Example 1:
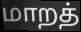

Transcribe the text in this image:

மாறத்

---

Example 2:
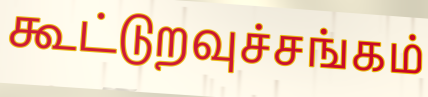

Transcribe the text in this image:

கூட்டுறவுச்சங்கம்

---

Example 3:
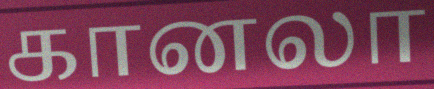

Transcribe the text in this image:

கானலா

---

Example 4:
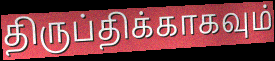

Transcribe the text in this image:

திருப்திக்காகவும்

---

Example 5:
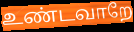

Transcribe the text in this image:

உண்டவாறே